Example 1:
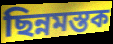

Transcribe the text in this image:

ছিন্নমস্তক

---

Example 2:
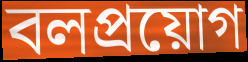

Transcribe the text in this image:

বলপ্ৰয়োগ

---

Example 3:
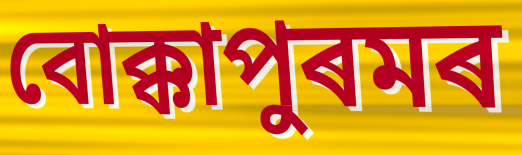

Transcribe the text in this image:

বোক্কাপুৰমৰ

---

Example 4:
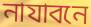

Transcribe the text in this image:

নাযাবনে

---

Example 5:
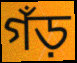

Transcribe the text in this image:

গঁড়